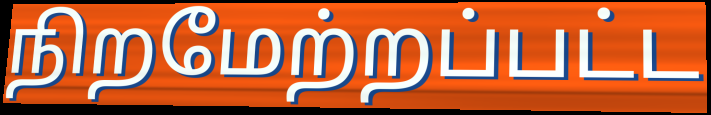
நிறமேற்றப்பட்ட